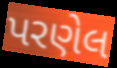
પરણેલ